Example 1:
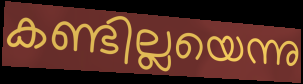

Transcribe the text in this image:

കണ്ടില്ലയെന്നു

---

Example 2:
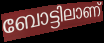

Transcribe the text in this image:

ബോട്ടിലാണ്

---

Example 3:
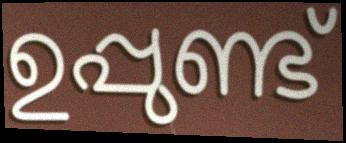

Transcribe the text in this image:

ഉപ്പുണ്ട്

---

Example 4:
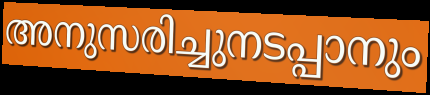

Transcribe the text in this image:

അനുസരിച്ചുനടപ്പാനും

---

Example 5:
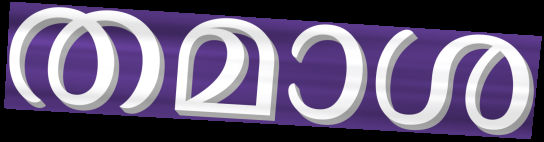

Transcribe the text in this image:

തമാശ